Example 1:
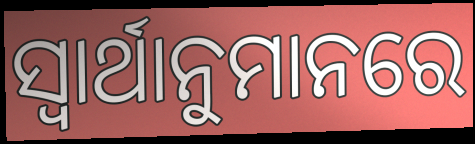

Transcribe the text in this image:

ସ୍ୱାର୍ଥାନୁମାନରେ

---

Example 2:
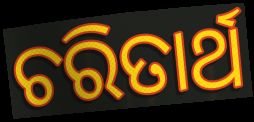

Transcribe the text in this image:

ଚରିତାର୍ଥ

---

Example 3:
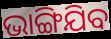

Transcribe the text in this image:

ଭାଙ୍ଗିଯିବ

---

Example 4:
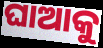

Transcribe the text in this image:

ଘାଆକୁ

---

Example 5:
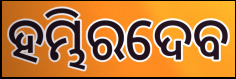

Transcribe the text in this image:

ହମ୍ଭିରଦେବ